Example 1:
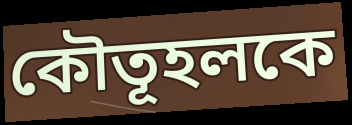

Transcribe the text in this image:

কৌতূহলকে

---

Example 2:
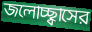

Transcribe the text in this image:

জলোচ্ছ্বাসের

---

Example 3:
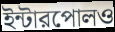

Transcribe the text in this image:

ইন্টারপোলও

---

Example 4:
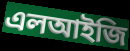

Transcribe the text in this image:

এলআইজি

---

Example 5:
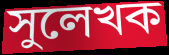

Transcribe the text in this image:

সুলেখক